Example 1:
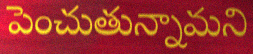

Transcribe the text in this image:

పెంచుతున్నామని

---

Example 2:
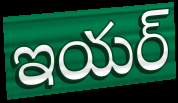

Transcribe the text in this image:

ఇయర్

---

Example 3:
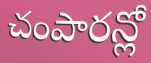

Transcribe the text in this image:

చంపారన్లో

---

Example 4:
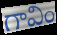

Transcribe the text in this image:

గావిం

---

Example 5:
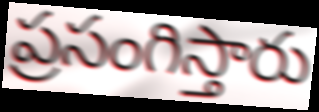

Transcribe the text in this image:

ప్రసంగిస్తారు